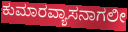
ಕುಮಾರವ್ಯಾಸನಾಗಲೀ